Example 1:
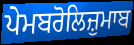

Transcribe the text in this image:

ਪੇਮਬਰੋਲਿਜ਼ੁਮਾਬ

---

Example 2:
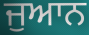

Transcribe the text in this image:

ਜੁਆਨ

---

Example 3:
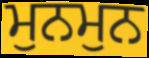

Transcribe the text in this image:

ਮੁਨਮੁਨ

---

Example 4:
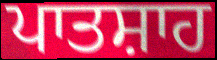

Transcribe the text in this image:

ਪਾਤਸ਼ਾਹ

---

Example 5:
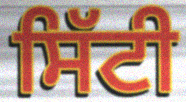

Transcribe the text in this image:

ਸਿੱਟੀ